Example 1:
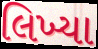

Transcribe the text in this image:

લિખ્યા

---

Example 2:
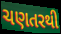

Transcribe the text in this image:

ચણતરથી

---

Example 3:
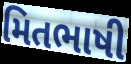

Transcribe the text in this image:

મિતભાષી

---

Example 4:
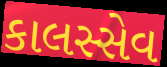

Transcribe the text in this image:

કાલસ્સેવ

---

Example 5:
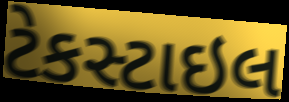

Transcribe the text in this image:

ટેકસ્ટાઇલ